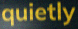
quietly